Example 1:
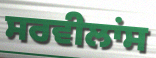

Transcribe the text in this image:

ਸਰਵੀਲਾਂਸ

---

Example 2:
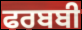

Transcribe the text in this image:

ਫਰਬਬੀ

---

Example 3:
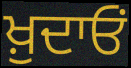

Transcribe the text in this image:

ਖ਼ੁਦਾਓਂ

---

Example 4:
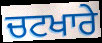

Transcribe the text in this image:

ਚਟਖਾਰੇ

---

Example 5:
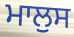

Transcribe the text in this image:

ਮਾਲੁਸ